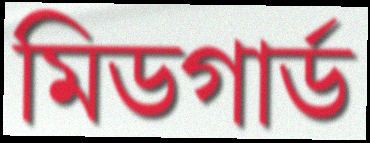
মিডগার্ড